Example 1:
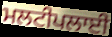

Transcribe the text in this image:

ਮਲਟੀਪਲਾਈ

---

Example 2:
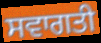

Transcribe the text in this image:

ਸਵਾਗਤੀ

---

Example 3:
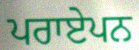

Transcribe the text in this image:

ਪਰਾਏਪਨ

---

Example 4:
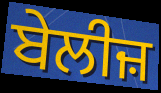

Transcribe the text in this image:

ਬੇਲੀਜ਼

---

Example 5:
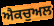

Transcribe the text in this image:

ਐਕਚੁਅਲ